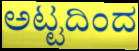
ಅಟ್ಟದಿಂದ